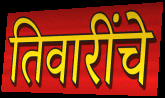
तिवारींचे